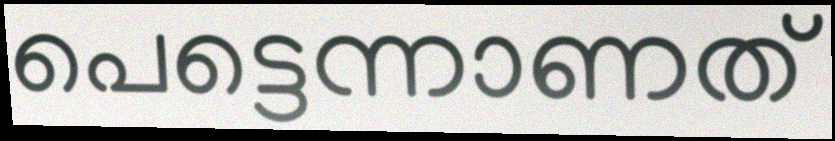
പെട്ടെന്നാണത്